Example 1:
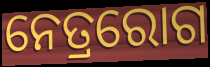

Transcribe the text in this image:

ନେତ୍ରରୋଗ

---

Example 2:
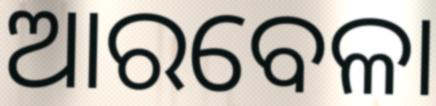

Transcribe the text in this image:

ଆରବେଳା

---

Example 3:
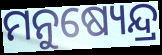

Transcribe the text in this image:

ମନୁଷ୍ୟେନ୍ଦ୍ର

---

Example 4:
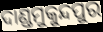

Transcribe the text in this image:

ଦାଣ୍ଡମୁକୁନ୍ଦପୁର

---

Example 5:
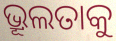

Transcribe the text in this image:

ଭ୍ରୂଲତାକୁ